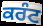
ਕਰੰਟ